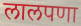
लालपणा